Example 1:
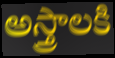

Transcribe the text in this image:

అస్త్రాలకి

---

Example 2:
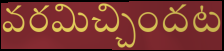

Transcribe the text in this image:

వరమిచ్చిందట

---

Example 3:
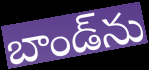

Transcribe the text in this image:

బాండ్‌ను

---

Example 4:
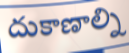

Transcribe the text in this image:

దుకాణాల్ని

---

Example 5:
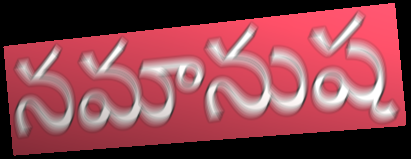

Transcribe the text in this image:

నమానుష